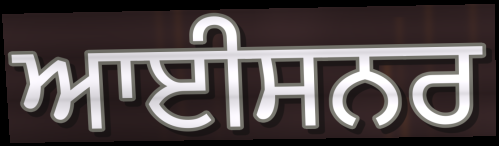
ਆਈਸਨਰ